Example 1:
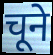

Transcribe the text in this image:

चूने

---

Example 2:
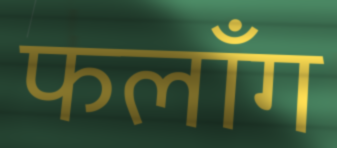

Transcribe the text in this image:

फलाँग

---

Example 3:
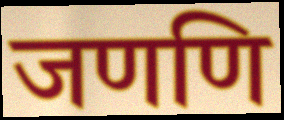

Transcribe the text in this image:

जणणि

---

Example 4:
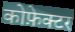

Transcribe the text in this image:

कोफ़ेक्टर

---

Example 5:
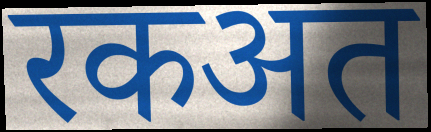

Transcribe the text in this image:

रकअत